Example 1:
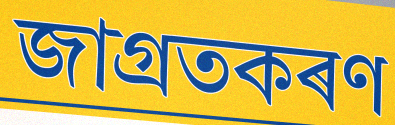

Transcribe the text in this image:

জাগ্ৰতকৰণ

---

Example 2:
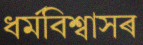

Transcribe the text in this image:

ধৰ্মবিশ্বাসৰ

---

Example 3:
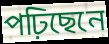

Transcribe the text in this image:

পঢ়িছেনে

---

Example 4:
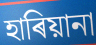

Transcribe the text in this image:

হাৰিয়ানা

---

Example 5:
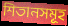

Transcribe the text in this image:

শিতানসমূহ